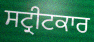
ਸਟ੍ਰੀਟਕਾਰ